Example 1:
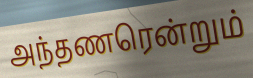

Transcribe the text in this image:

அந்தணரென்றும்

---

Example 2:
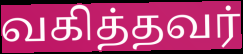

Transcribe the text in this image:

வகித்தவர்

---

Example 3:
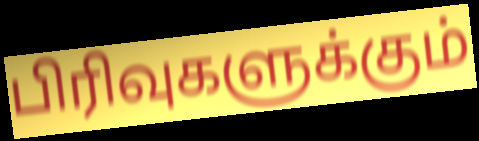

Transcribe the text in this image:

பிரிவுகளுக்கும்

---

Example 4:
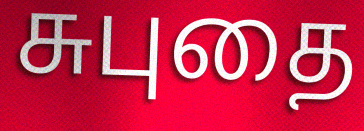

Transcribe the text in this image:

சுபுதை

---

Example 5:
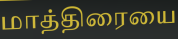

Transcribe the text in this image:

மாத்திரையை